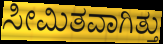
ಸೀಮಿತವಾಗಿತ್ತು